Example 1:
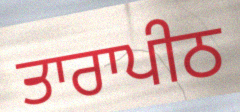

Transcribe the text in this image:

ਤਾਰਾਪੀਠ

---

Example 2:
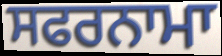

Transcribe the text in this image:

ਸਫਰਨਾਮਾ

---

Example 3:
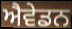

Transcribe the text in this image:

ਐਵੇਡਨ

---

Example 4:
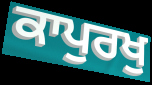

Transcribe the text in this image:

ਕਾਪੁਰਖੁ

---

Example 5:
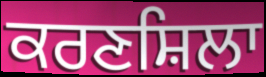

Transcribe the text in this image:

ਕਰਣਸ਼ਿਲਾ